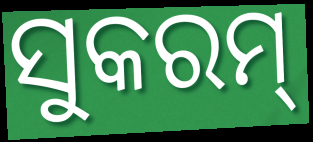
ସୁକରମ୍